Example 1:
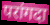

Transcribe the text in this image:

परांगदा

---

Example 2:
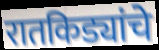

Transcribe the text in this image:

रातकिड्यांचे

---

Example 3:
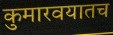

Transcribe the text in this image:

कुमारवयातच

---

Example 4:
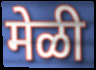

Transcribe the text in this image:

मेळी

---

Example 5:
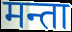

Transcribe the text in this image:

मन्ता